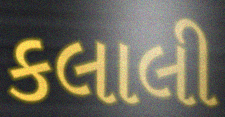
કલાલી